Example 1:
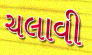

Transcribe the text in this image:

ચલાવી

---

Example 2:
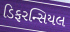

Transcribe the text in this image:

ડિફરન્સિયલ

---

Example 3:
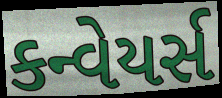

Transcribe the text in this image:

કન્વેયર્સ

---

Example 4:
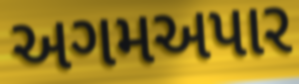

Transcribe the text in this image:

અગમઅપાર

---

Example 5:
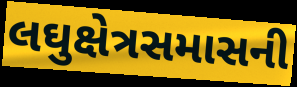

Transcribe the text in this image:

લઘુક્ષેત્રસમાસની